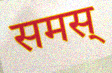
समस्